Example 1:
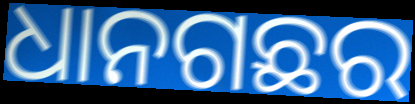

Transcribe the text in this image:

ଧାନଗଛର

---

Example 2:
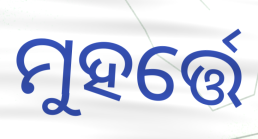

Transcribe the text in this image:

ମୁହର୍ତ୍ତେ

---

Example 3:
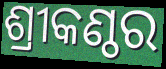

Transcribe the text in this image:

ଶ୍ରୀକଣ୍ଠର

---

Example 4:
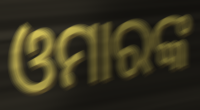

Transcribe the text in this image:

ଓମାରଙ୍କ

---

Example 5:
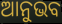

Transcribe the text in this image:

ଆନୁଭବ